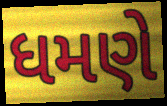
ધમણે